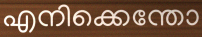
എനിക്കെന്തോ